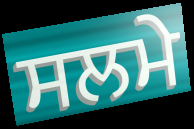
ਸਲਮੇ